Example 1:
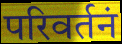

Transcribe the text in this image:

परिवर्तनं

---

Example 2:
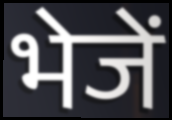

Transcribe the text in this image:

भेजें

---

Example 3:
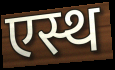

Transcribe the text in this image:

एस्थ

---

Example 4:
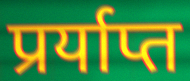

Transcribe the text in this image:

प्रर्याप्त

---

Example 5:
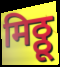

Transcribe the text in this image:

मिठ्ठू